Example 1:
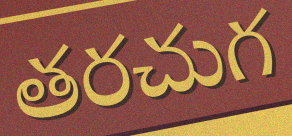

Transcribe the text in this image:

తరచుగ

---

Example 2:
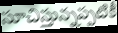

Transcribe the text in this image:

సూచిస్తున్నప్పటికీ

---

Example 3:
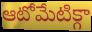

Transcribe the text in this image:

ఆటోమేటిక్గా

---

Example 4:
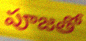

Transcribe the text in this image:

పూజతో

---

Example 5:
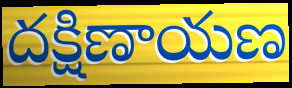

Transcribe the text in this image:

దక్షిణాయణ